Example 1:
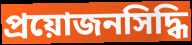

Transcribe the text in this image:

প্রয়োজনসিদ্ধি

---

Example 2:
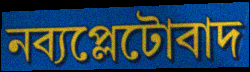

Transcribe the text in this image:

নব্যপ্লেটোবাদ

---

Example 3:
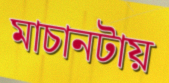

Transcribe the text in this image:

মাচানটায়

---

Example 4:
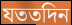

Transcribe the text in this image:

যততদিন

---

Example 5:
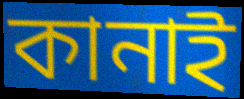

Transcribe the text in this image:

কানাই